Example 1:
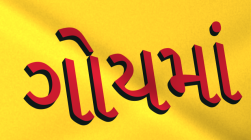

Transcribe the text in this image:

ગોયમાં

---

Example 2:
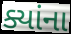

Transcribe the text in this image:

ક્યાંના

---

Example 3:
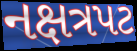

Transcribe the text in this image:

નક્ષત્રપટ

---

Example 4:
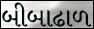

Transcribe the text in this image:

બીબાઢાળ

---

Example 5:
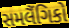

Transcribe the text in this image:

સમલૈંગિકો